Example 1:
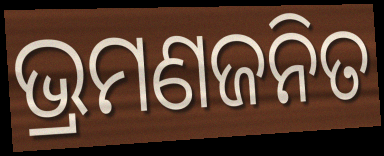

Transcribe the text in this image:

ଭ୍ରମଣଜନିତ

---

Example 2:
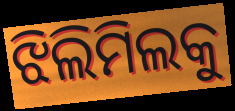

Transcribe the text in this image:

ଝିଲିମିଲକୁ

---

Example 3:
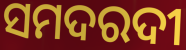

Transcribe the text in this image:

ସମଦରଦୀ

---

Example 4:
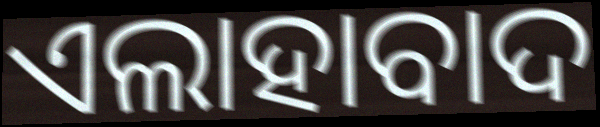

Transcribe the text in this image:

ଏଲାହାବାଦ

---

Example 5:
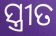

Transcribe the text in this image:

ସ୍ତ୍ରୀତ